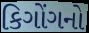
કિગોંગનો